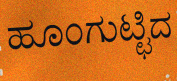
ಹೂಂಗುಟ್ಟಿದ